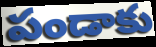
పండాకు